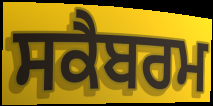
ਸਕੈਬਰਮ